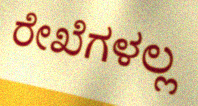
ರೇಖೆಗಳಲ್ಲ